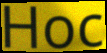
Hoc